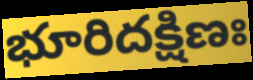
భూరిదక్షిణః